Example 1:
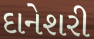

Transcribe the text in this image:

દાનેશરી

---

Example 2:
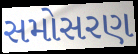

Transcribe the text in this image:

સમોસરણ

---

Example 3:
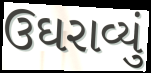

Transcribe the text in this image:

ઉઘરાવ્યું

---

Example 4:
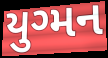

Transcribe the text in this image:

યુગ્મન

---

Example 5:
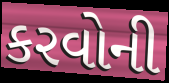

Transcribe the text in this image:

કરવોની